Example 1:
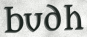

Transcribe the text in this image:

budh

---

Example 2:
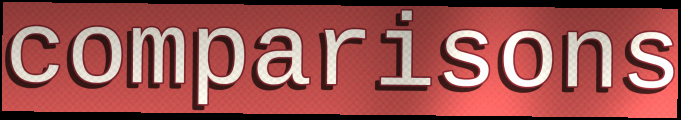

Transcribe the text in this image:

comparisons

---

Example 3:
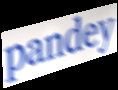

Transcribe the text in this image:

pandey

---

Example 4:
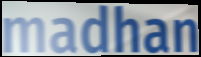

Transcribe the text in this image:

madhan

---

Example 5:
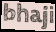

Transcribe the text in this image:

bhaji